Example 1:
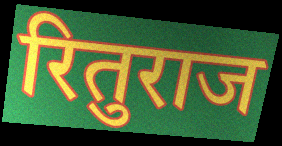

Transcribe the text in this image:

रितुराज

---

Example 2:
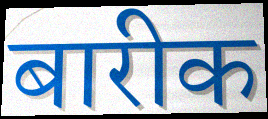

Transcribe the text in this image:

बारीक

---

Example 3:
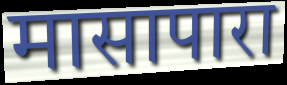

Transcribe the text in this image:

मासापारा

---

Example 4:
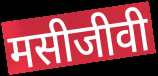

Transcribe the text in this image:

मसीजीवी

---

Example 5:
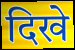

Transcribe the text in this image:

दिखे